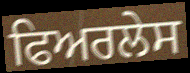
ਫਿਅਰਲੇਸ